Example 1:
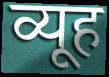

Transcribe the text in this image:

व्यूह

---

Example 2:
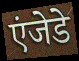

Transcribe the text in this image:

एंजेडे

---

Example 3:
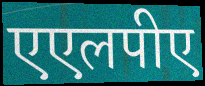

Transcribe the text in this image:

एएलपीए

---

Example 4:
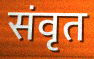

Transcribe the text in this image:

संवृत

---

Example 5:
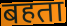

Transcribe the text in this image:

बहता